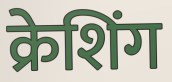
क्रेशिंग